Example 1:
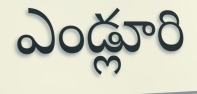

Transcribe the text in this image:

ఎండ్లూరి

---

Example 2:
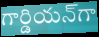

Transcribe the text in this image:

గార్డియన్‌గా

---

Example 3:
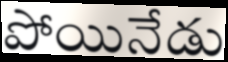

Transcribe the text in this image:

పోయినేడు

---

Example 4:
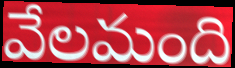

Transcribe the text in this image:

వేలమంది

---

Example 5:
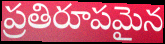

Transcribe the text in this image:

ప్రతిరూపమైన